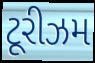
ટૂરીઝમ